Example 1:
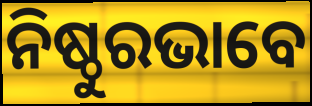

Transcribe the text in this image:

ନିଷ୍ଠୁରଭାବେ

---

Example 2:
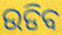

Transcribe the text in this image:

ଉଡିବ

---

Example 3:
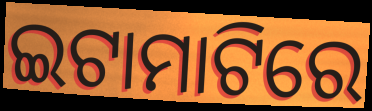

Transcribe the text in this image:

ଇଟାମାଟିରେ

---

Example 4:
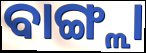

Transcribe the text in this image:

ବାଙ୍ଗ୍ଲା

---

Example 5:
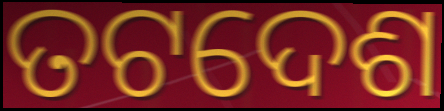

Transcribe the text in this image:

ତଟଦେଶ